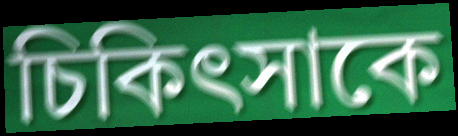
চিকিৎসাকে